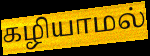
கழியாமல்